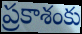
ప్రకాశంకు